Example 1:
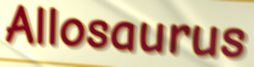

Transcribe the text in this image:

Allosaurus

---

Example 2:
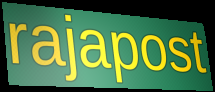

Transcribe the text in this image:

rajapost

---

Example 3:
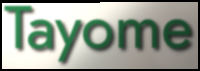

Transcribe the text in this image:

Tayome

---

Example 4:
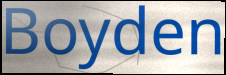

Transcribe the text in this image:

Boyden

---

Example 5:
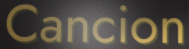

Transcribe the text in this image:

Cancion